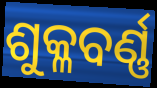
ଶୁକ୍ଳବର୍ଣ୍ଣ